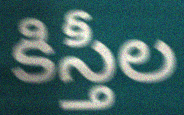
కిస్తీల